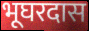
भूघरदास